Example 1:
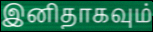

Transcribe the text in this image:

இனிதாகவும்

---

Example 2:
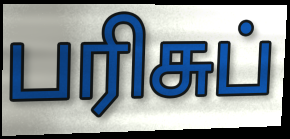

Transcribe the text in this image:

பரிசுப்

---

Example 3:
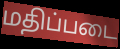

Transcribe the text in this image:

மதிப்படை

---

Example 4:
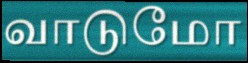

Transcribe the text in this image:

வாடுமோ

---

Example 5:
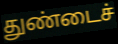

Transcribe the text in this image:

துண்டைச்